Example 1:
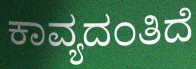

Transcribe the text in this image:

ಕಾವ್ಯದಂತಿದೆ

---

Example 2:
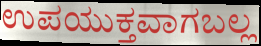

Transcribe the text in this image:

ಉಪಯುಕ್ತವಾಗಬಲ್ಲ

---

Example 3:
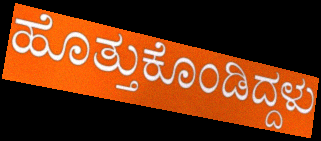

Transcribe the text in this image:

ಹೊತ್ತುಕೊಂಡಿದ್ದಳು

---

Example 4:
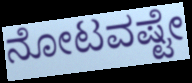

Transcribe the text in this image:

ನೋಟವಷ್ಟೇ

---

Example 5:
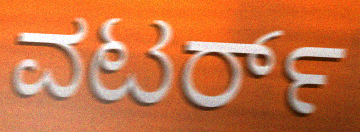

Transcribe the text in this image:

ವಟರ್ರ್